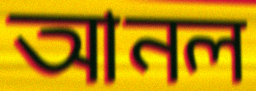
আনল